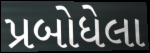
પ્રબોધેલા